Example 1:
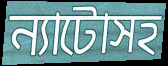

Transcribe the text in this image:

ন্যাটোসহ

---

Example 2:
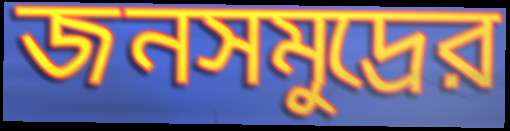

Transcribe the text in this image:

জনসমুদ্রের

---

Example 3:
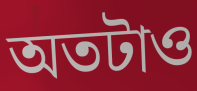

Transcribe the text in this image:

অতটাও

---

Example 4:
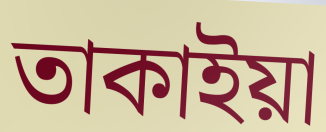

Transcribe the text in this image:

তাকাইয়া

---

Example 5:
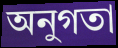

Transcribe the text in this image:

অনুগতা